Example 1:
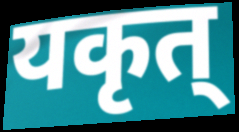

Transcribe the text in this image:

यकृत्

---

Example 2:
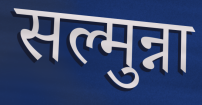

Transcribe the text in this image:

सल्मुन्ना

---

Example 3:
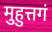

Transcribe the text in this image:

मुहुत्तगं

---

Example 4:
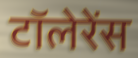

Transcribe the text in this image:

टॉलेरेंस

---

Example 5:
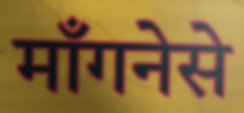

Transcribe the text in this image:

माँगनेसे